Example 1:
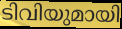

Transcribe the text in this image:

ടിവിയുമായി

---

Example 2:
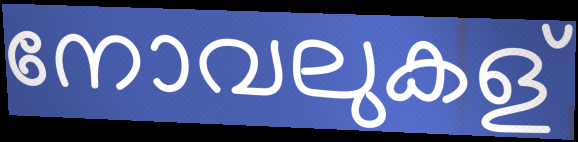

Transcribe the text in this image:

നോവലുകള്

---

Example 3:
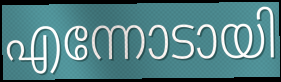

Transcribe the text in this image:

എന്നോടായി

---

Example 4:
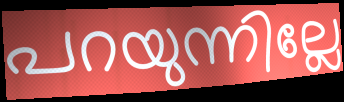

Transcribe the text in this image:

പറയുന്നില്ലേ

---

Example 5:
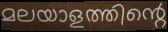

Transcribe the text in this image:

മലയാളത്തിന്റെ